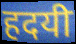
हदयी